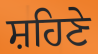
ਸ਼ਹਿਣੇ